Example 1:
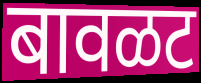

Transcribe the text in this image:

बावळट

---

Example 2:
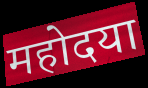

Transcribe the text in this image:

महोदया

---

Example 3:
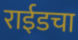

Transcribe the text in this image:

राईडचा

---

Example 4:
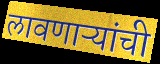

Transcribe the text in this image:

लावणाऱ्यांची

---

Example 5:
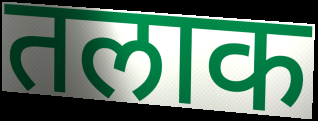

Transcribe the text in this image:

तलाक